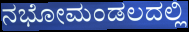
ನಭೋಮಂಡಲದಲ್ಲಿ